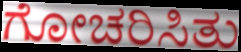
ಗೋಚರಿಸಿತು